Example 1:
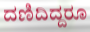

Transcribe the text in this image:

ದಣಿದಿದ್ದರೂ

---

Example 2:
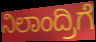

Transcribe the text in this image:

ನಿಲಾಂದ್ರಿಗೆ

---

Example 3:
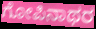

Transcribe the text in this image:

ಗೋಪಿನಾಥರ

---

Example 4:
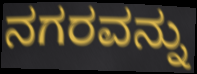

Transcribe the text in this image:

ನಗರವನ್ನು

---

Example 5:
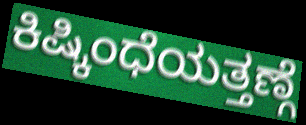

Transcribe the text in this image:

ಕಿಷ್ಕಿಂಧೆಯತ್ತಣ್ಗೆ